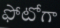
ఫోటోగా